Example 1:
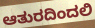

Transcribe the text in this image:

ಆತುರದಿಂದಲಿ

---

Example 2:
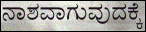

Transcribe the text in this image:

ನಾಶವಾಗುವುದಕ್ಕೆ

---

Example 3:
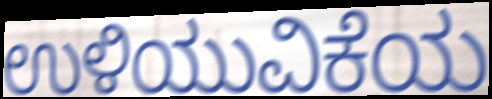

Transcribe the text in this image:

ಉಳಿಯುವಿಕೆಯ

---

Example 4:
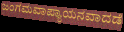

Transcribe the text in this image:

ಜಂಗಮವಾಪ್ಯಾಯನವಾದಡೆ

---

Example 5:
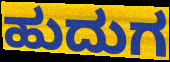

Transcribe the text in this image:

ಹುದುಗ